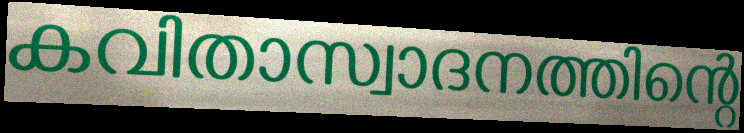
കവിതാസ്വാദനത്തിന്റെ